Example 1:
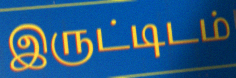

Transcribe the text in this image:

இருட்டிடம்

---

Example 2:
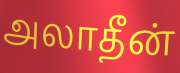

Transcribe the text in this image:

அலாதீன்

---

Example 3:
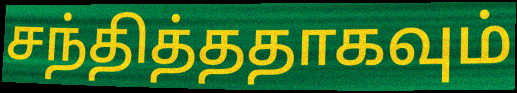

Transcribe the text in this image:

சந்தித்ததாகவும்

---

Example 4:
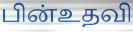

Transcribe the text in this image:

பின்உதவி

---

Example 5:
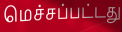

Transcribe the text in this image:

மெச்சப்பட்டது